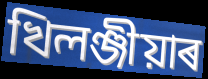
খিলঞ্জীয়াৰ